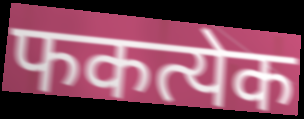
फकत्येक